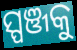
ସ୍ପଞ୍ଜକୁ